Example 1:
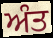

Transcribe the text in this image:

ਅੰਤ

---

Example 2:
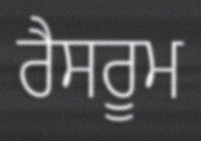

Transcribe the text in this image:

ਰੈਸਰੂਮ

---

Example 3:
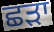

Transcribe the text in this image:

ਛਡ਼ਾ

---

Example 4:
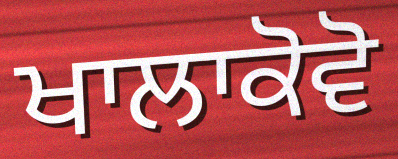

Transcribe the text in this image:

ਖਾਲਾਕੋਵੋ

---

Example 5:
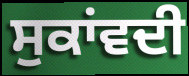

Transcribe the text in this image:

ਸੁਕਾਂਵਦੀ